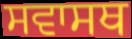
ਸਵਾਸਥ